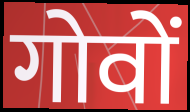
गोवों